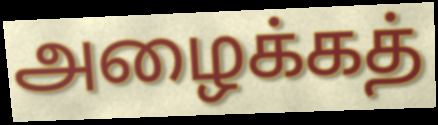
அழைக்கத்